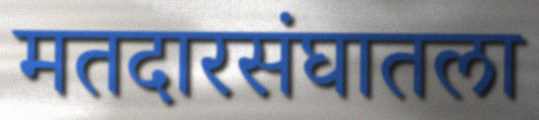
मतदारसंघातला